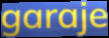
garaje